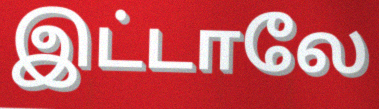
இட்டாலே